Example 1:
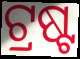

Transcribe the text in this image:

ଟ୍ରଷ୍ଟ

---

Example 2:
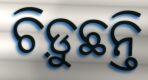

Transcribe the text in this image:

ଚିଡ଼ୁଛନ୍ତି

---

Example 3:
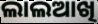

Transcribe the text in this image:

ଲାଲଆଖି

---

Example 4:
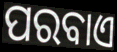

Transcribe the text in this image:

ପରବାଏ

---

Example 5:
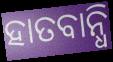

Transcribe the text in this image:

ହାତବାନ୍ଧି